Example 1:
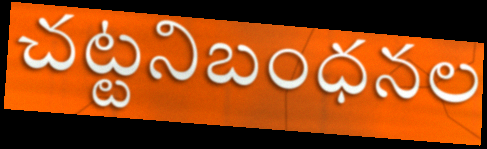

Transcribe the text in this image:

చట్టనిబంధనల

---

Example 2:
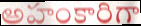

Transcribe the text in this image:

అహంకారిగా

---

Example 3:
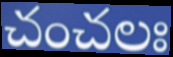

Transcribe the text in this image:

చంచలః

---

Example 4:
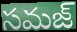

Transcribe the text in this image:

సమజ్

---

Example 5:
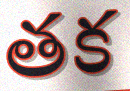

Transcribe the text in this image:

తక